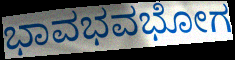
ಭಾವಭವಭೋಗ